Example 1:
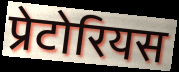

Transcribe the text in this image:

प्रेटोरियस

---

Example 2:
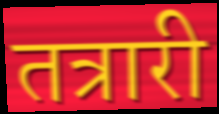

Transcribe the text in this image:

तत्रारी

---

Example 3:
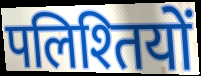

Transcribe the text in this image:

पलिश्‍तियों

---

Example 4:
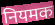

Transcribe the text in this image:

नियमक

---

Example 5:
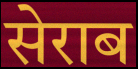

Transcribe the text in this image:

सेराब